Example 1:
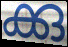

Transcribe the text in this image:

ക്കു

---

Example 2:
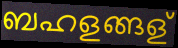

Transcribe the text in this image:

ബഹളങ്ങള്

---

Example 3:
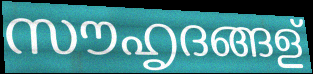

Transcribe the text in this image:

സൗഹൃദങ്ങള്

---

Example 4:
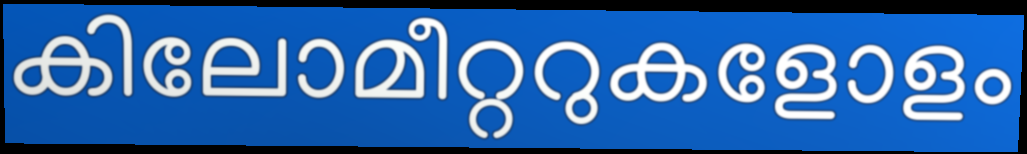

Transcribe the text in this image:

കിലോമീറ്ററുകളോളം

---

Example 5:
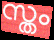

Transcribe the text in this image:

സ്തം